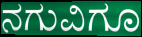
ನಗುವಿಗೂ